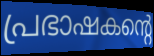
പ്രഭാഷകന്റെ